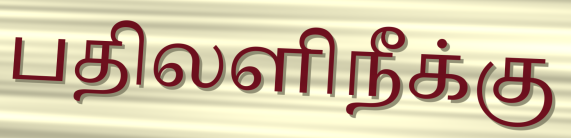
பதிலளிநீக்கு